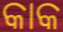
କାକ